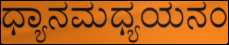
ಧ್ಯಾನಮಧ್ಯಯನಂ